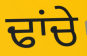
ਢਾਂਚੇ